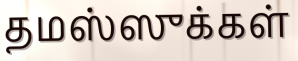
தமஸ்ஸுக்கள்